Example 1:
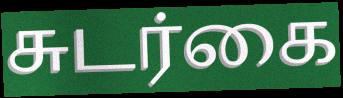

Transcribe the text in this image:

சுடர்கை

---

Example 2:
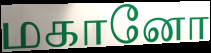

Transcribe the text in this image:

மகானோ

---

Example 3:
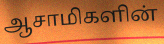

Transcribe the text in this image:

ஆசாமிகளின்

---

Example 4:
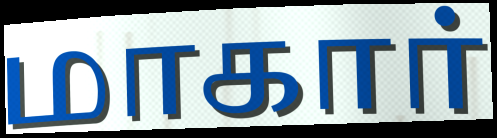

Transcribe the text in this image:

மாகார்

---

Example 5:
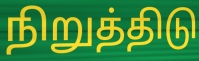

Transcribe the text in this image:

நிறுத்திடு